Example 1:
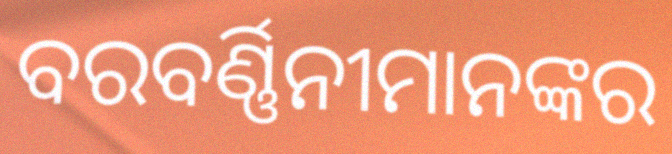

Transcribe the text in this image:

ବରବର୍ଣ୍ଣିନୀମାନଙ୍କର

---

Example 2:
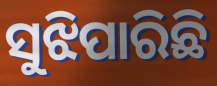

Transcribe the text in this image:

ସୁଝିପାରିଛି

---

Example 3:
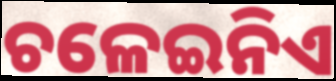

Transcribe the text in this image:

ଚଳେଇନିଏ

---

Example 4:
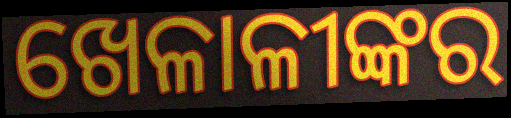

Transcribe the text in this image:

ଖେଳାଳୀଙ୍କର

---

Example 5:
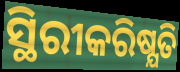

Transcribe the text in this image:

ସ୍ଥିରୀକରିଷ୍ଯତି